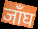
जाँघ